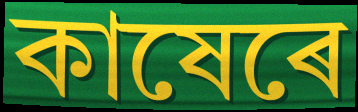
কাষেৰে